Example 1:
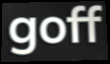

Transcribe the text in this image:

goff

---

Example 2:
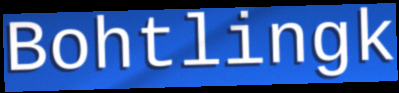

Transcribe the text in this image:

Bohtlingk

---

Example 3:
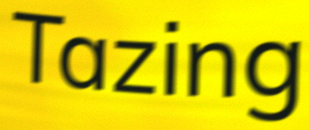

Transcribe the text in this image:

Tazing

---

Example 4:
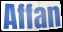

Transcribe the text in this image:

Affan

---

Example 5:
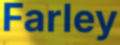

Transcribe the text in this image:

Farley